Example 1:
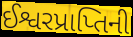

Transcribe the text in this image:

ઈશ્વરપ્રાપ્તિની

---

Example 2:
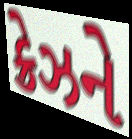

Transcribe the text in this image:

ક્રેઝને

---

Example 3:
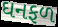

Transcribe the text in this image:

ઘનફળ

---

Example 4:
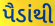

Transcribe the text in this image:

પૈડાંથી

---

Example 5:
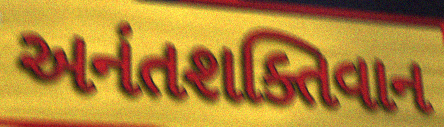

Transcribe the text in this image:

અનંતશક્તિવાન